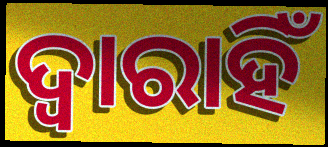
ଦ୍ୱାରାହିଁ